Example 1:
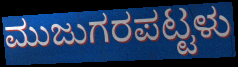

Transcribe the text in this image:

ಮುಜುಗರಪಟ್ಟಳು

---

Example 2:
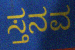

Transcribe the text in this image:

ಸ್ತನವ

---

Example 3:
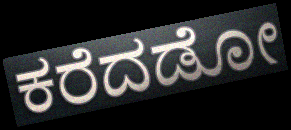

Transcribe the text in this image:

ಕರೆದಡೋ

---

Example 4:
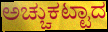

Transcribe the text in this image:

ಅಚ್ಚುಕಟ್ಟಾದ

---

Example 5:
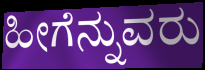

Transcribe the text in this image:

ಹೀಗೆನ್ನುವರು